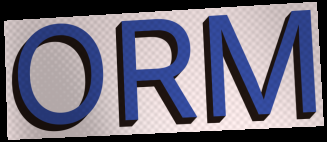
ORM